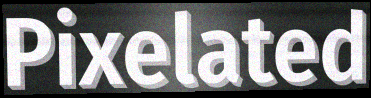
Pixelated